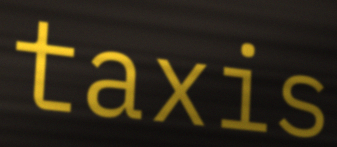
taxis